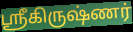
ஶ்ரீகிருஷ்ணர்